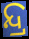
ନ୍ଦ୍ର